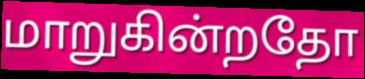
மாறுகின்றதோ